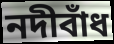
নদীবাঁধ